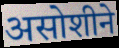
असोशीने